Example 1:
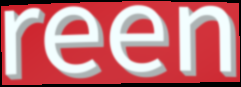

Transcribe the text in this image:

reen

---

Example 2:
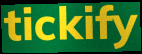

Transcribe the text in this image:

tickify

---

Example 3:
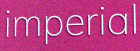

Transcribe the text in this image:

imperial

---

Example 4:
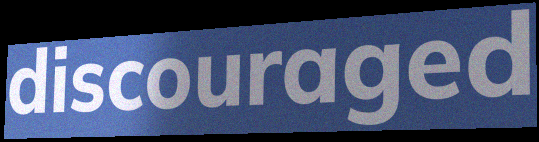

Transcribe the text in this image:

discouraged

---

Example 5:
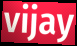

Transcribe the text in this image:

vijay